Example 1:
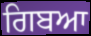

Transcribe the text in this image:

ਗਿਬਆ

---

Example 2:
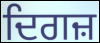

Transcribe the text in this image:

ਦਿਗਜ਼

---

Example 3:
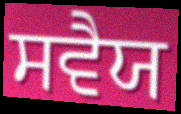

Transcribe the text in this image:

ਸਵੈਯ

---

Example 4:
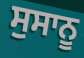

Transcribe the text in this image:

ਸੁਸਾਨੂ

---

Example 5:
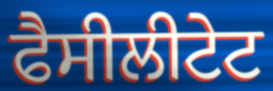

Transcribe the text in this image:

ਫੈਸੀਲੀਟੇਟ